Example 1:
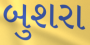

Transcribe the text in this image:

બુશરા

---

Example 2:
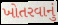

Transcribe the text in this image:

ખોતરવાનું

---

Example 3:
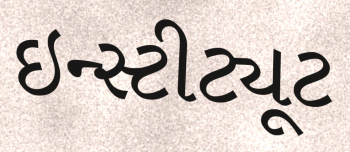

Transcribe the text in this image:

ઇન્સ્ટીટ્યૂટ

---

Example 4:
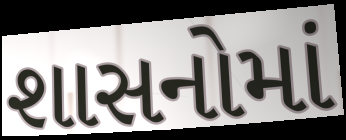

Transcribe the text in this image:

શાસનોમાં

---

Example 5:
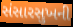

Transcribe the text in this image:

સંસારસુખની